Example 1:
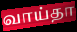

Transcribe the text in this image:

வாய்தா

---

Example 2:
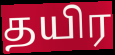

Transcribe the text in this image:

தயிர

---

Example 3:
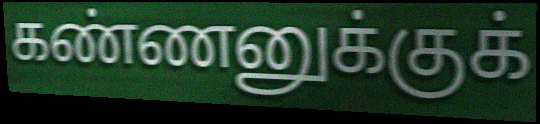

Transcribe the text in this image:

கண்ணனுக்குக்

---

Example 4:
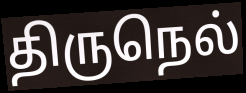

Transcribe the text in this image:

திருநெல்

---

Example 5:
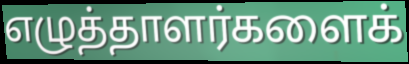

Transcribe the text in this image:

எழுத்தாளர்களைக்